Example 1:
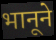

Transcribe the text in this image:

भानूने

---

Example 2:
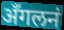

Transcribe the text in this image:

अँगलनं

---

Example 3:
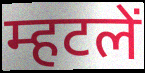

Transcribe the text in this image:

म्हटलें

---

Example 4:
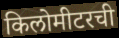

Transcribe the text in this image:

किलोमीटरची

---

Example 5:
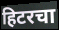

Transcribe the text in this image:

हिटरचा